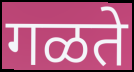
गळते